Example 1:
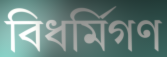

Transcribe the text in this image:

বিধর্মিগণ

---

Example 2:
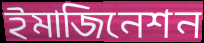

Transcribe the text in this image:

ইমাজিনেশন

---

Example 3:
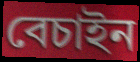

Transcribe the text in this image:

বেচাইন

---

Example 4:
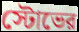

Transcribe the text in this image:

স্টোভের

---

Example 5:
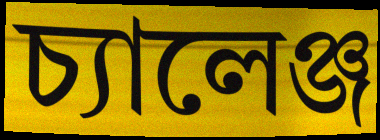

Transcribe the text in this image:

চ্যালেঞ্জ